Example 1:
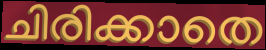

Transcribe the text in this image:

ചിരിക്കാതെ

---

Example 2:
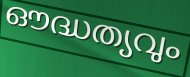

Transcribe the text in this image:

ഔദ്ധത്യവും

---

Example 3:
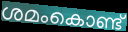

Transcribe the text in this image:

ശമംകൊണ്ട്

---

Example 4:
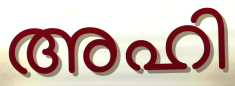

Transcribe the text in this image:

അഹി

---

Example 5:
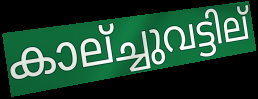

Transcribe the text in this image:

കാല്ച്ചുവട്ടില്